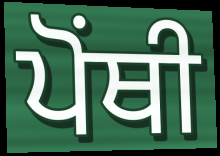
ਪੋਂਥੀ